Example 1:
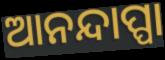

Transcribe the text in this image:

ଆନନ୍ଦାପ୍ପା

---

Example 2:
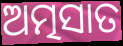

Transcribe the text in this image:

ଅତ୍ମସାତ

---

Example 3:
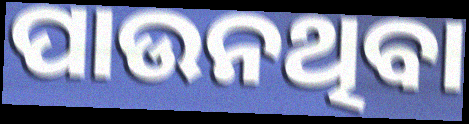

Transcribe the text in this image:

ପାଉନଥିବା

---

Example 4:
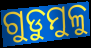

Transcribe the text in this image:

ଗୁଡୁମୁଳୁ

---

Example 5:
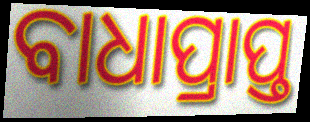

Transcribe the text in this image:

ବାଧାପ୍ରାପ୍ତ